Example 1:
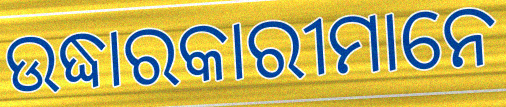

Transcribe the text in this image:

ଉଦ୍ଧାରକାରୀମାନେ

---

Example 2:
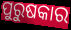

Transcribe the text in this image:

ପୁରୁଷକାର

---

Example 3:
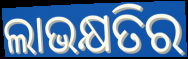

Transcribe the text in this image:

ଲାଭକ୍ଷତିର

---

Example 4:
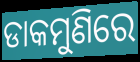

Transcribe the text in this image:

ଡାକମୁଣିରେ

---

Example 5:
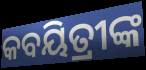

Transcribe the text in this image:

କବୟିତ୍ରୀଙ୍କ